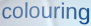
colouring